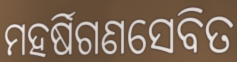
ମହର୍ଷିଗଣସେବିତ